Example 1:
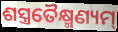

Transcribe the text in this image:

ଶସ୍ତ୍ରତୈକ୍ଷ୍ମଣ୍ୟମ୍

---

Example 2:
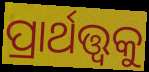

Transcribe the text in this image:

ପ୍ରାର୍ଥତ୍ତ୍ୱକୁ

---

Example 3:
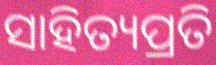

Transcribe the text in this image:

ସାହିତ୍ୟପ୍ରତି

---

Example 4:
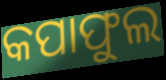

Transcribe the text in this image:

କପାଫୁଲ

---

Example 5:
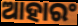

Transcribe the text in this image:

ଆହାରଂ